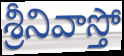
శ్రీనివాస్తో